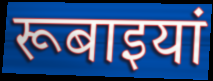
रूबाइयां